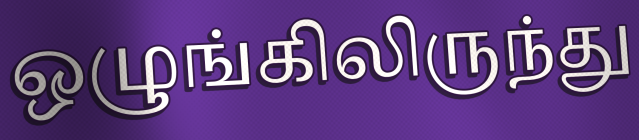
ஒழுங்கிலிருந்து